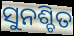
ସୁନଶ୍ଚିତ